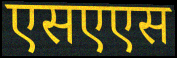
एसएएस